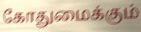
கோதுமைக்கும்